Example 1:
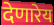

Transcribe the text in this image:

देणारेय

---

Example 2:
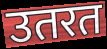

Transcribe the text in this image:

उतरत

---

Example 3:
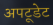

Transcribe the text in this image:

अपटूडेट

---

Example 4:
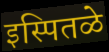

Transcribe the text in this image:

इस्पितळे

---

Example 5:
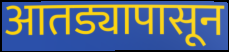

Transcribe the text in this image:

आतड्यापासून